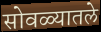
सोवळ्यातले